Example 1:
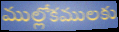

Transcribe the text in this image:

ముల్లోకములకు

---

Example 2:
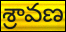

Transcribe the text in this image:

శ్రావణ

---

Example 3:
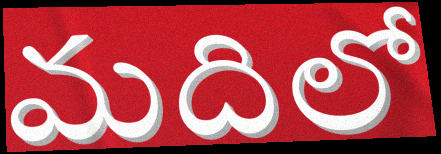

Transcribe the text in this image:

మదిలో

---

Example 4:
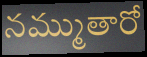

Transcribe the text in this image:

నమ్ముతారో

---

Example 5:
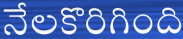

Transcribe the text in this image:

నేలకొరిగింది